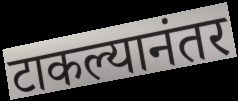
टाकल्यानंतर